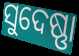
ସୁଦେଷ୍ଣା